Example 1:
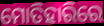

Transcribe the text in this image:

ମୋତିହାରିରେ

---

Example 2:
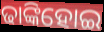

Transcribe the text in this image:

ଢାଙ୍କିହୋଇ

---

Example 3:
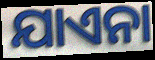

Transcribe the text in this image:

ଯାଏନା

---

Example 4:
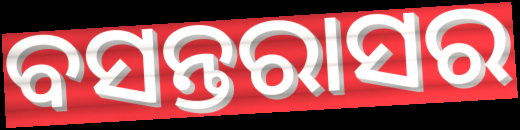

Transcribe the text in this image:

ବସନ୍ତରାସର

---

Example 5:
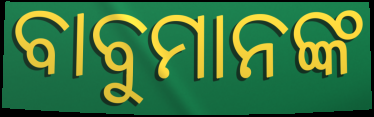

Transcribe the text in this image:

ବାବୁମାନଙ୍କ